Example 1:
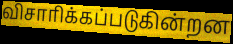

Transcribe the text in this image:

விசாரிக்கப்படுகின்றன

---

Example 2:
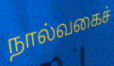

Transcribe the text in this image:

நால்வகைச்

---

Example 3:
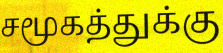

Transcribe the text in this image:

சமூகத்துக்கு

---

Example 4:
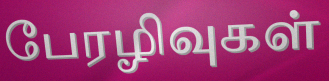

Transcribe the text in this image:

பேரழிவுகள்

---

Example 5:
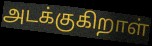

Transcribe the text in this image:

அடக்குகிறாள்